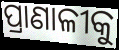
ପ୍ରାଣାଳୀକୁ